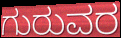
ಗುರುವರ